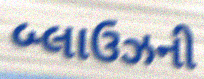
બ્લાઉઝની